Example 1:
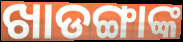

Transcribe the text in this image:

ଖାଡଙ୍ଗାଙ୍କ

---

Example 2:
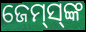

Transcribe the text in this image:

ଜେମ୍‌ସ୍‌ଙ୍କ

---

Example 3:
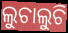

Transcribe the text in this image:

ଲୁଚାଲୁଚି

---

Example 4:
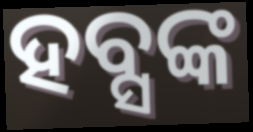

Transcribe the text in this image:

ହବ୍ସଙ୍କ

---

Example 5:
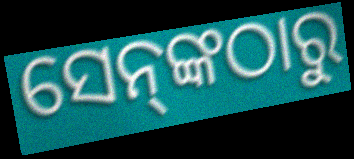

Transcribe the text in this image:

ସେନ୍‌ଙ୍କଠାରୁ